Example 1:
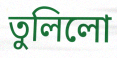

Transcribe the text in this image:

তুলিলো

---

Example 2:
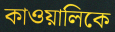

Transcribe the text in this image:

কাওয়ালিকে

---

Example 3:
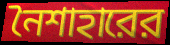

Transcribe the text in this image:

নৈশাহারের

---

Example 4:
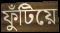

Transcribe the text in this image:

ফুঁটিয়ে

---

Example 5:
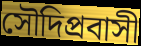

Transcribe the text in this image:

সৌদিপ্রবাসী